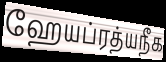
ஹேயப்ரத்யநீக